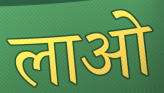
लाओ